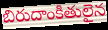
బిరుదాంకితులైన